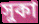
সুকা